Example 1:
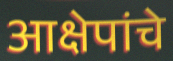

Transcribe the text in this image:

आक्षेपांचे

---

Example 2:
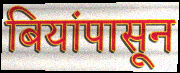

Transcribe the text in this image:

बियांपासून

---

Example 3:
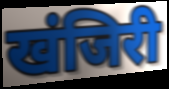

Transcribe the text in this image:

खंजिरी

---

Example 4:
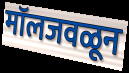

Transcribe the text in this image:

मॉलजवळून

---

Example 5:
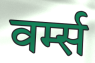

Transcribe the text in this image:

वर्म्स